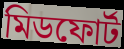
মিডফোর্ট